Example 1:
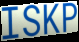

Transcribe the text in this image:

ISKP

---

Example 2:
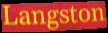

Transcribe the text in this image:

Langston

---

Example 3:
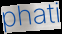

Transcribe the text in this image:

phati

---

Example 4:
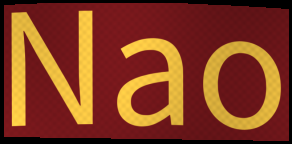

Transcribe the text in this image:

Nao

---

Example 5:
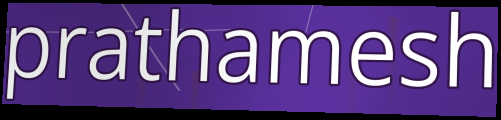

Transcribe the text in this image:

prathamesh